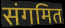
संगमित